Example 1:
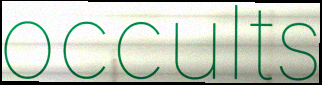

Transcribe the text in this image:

occults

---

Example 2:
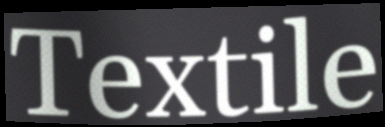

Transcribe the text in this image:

Textile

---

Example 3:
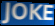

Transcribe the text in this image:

JOKE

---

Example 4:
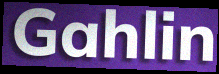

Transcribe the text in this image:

Gahlin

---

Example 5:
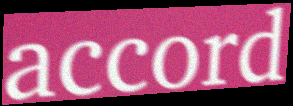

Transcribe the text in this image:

accord